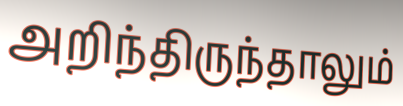
அறிந்திருந்தாலும்